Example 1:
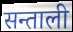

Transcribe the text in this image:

सन्ताली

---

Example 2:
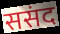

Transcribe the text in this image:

ससंद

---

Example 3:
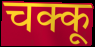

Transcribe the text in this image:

चक्कू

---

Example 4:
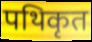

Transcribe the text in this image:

पथिकृत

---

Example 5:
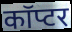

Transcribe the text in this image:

कॉप्टर